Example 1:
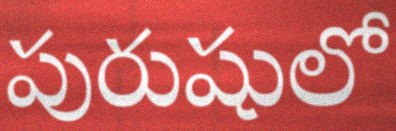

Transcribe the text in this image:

పురుషులో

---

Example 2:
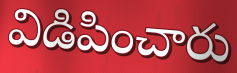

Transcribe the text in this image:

విడిపించారు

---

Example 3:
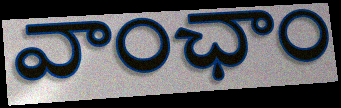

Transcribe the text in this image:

వాంఛాం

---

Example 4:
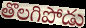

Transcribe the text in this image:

తొలగిపోడు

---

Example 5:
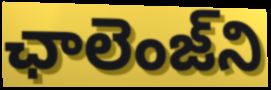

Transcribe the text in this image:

ఛాలెంజ్‌ని